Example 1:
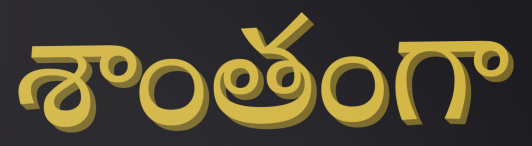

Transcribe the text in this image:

శాంతంగా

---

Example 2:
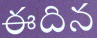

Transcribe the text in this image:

ఈదిన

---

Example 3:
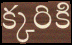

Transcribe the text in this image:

క్కరికి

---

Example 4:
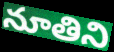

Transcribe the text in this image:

నూతిని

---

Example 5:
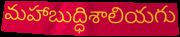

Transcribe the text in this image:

మహాబుద్ధిశాలియగు